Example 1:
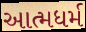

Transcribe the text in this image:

આત્મધર્મ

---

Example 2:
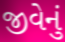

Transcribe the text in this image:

જીવેનું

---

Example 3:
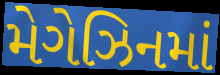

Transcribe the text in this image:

મેગેઝિનમાં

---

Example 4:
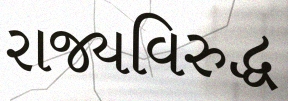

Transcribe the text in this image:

રાજ્યવિરુદ્ધ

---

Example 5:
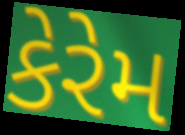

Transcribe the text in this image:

કેરેમ